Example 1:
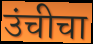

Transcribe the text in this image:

उंचीचा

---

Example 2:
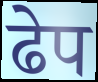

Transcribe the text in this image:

ढेप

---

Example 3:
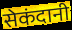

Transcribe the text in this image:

सेकंदानी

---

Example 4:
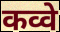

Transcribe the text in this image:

कव्वे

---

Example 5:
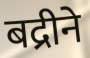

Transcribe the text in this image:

बद्रीने